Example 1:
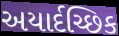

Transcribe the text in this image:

અયાર્દચ્છિક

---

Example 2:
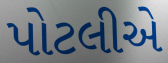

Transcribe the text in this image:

પોટલીએ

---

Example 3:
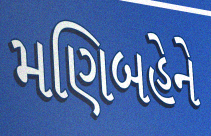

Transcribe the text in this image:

મણિબહેને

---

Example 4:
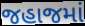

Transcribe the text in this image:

જહાજમાં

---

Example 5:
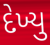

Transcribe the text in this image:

દેખ્યુ